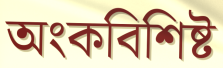
অংকবিশিষ্ট